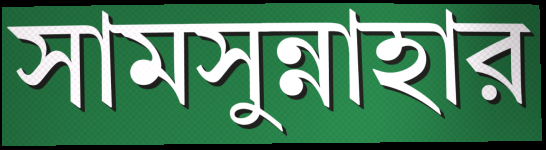
সামসুন্নাহার